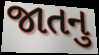
જાતનુ